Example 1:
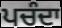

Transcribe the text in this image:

ਪਚੰਦਾ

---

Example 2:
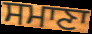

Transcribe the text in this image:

ਸਮਾਣਾ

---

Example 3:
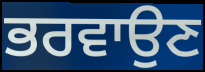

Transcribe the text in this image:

ਭਰਵਾਉਣ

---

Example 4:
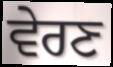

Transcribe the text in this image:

ਵੇਰਣ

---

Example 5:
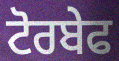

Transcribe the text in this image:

ਟੋਰਬੇਫ